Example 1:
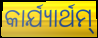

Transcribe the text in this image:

କାର୍ଯ୍ୟାର୍ଥମ୍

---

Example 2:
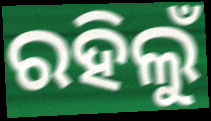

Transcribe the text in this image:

ରହିଲୁଁ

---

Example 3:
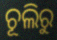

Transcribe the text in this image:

ଚୂଲିରୁ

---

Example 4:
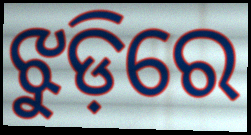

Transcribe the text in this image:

ଝୁଡ଼ିରେ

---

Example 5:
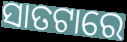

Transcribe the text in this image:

ସାତଟାରେ